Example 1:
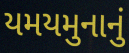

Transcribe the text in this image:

યમયમુનાનું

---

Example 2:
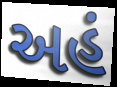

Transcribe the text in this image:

અહં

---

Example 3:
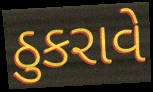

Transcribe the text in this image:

ઠુકરાવે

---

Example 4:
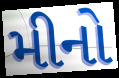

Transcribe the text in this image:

મીનો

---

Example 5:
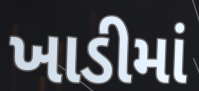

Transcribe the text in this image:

ખાડીમાં